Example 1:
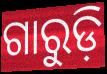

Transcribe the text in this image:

ଗାରୁଡ଼ି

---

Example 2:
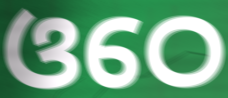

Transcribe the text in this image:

ଓଠେ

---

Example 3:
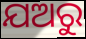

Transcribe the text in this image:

ଯଅରୁ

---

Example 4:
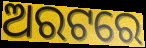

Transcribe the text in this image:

ଅରଟରେ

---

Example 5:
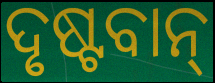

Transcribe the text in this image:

ଦୃଷ୍ଟବାନ୍